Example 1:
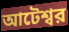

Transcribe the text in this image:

আটেশ্বর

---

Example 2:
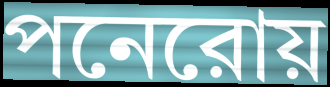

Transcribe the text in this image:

পনেরোয়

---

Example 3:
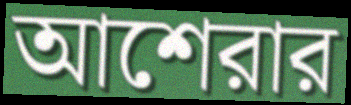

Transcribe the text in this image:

আশেরার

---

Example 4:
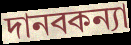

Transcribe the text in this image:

দানবকন্যা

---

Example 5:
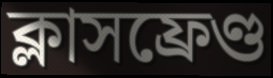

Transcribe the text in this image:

ক্লাসফ্রেণ্ড